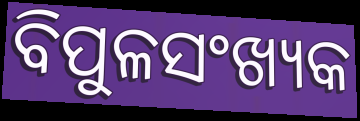
ବିପୁଳସଂଖ୍ୟକ